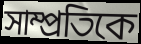
সাম্প্রতিকে